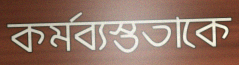
কর্মব্যস্ততাকে